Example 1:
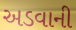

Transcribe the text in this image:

અડવાની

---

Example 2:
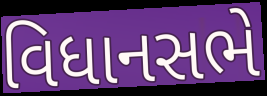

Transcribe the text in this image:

વિધાનસભે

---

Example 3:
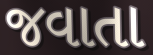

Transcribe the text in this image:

જવાતા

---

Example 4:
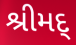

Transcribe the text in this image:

શ્રીમદ્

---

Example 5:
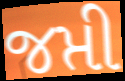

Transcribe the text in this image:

જપ્તી